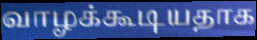
வாழக்கூடியதாக